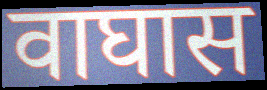
वाघास